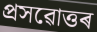
প্ৰসৱোত্তৰ